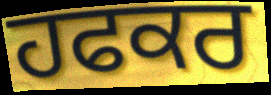
ਹਫਕਰ